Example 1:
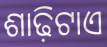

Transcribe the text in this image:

ଶାଢ଼ିଟାଏ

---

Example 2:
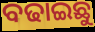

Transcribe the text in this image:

ବଢାଇଛୁ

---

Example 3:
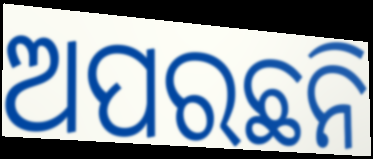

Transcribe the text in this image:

ଅପରଛନି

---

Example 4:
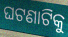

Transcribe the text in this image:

ଘଟଣାଟିକୁ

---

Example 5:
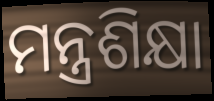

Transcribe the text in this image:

ମନ୍ତ୍ରଶିକ୍ଷା